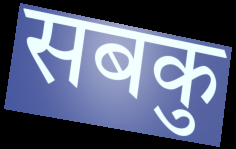
सबकु